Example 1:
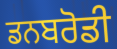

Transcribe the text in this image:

ਡਨਬਰੋਡੀ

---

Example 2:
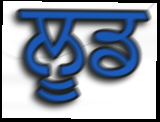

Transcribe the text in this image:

ਲੂਡ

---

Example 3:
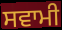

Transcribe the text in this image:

ਸਵਾਮੀ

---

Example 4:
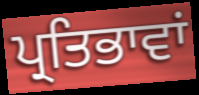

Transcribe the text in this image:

ਪ੍ਰਤਿਭਾਵਾਂ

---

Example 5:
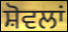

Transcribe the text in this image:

ਸ਼ੋਵਲਾਂ